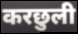
करछुली